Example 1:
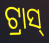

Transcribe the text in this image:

ଟ୍ରାସ୍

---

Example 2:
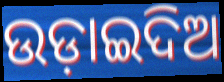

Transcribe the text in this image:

ଉଡ଼ାଇଦିଅ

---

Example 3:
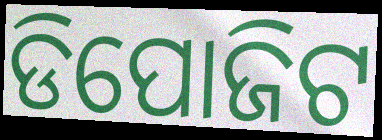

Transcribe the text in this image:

ଡିପୋଜିଟ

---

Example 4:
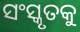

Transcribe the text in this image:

ସଂସ୍କୃତକୁ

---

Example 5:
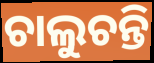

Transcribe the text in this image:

ଚାଲୁଚନ୍ତି